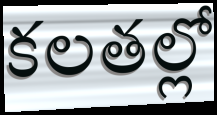
కలతల్లో